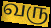
வரு